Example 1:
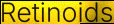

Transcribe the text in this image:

Retinoids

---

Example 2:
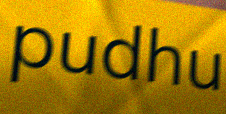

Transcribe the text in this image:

pudhu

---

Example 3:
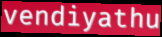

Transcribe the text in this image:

vendiyathu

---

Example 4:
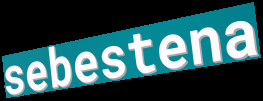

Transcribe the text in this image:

sebestena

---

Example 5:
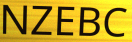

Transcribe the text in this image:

NZEBC